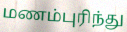
மணம்புரிந்து